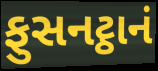
ફુસનટ્ઠાનં